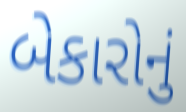
બેકારોનું